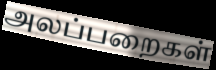
அலப்பறைகள்